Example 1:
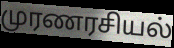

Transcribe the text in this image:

முரணரசியல்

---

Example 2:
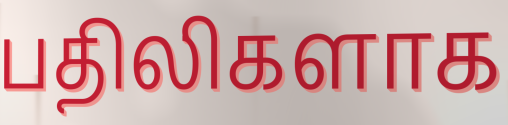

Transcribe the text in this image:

பதிலிகளாக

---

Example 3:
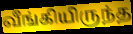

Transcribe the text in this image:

வீங்கியிருந்த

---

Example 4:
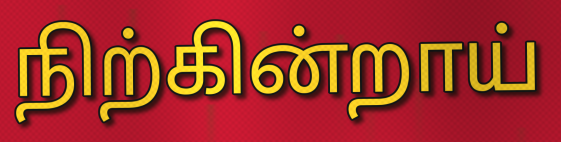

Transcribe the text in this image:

நிற்கின்றாய்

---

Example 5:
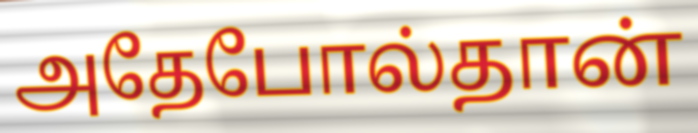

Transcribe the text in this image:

அதேபோல்தான்